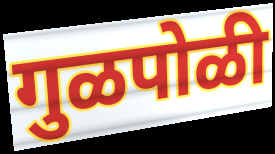
गुळपोळी